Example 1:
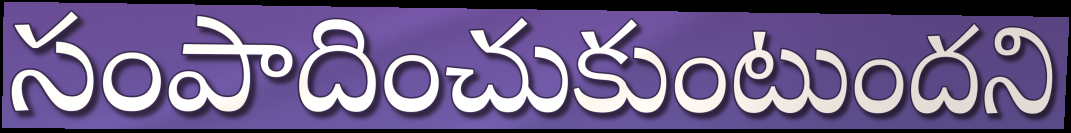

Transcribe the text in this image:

సంపాదించుకుంటుందని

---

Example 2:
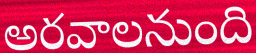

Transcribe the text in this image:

అరవాలనుంది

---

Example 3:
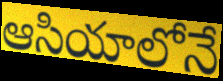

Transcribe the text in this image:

ఆసియాలోనే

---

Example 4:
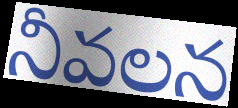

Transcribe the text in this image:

నీవలన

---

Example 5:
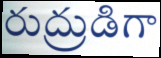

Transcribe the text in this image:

రుద్రుడిగా